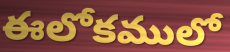
ఈలోకములో